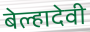
बेल्हादेवी